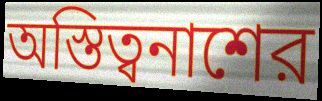
অস্তিত্বনাশের